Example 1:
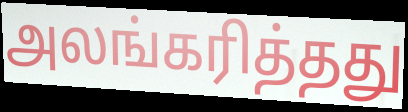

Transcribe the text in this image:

அலங்கரித்தது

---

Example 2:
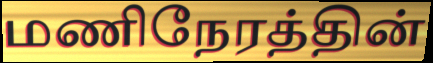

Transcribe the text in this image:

மணிநேரத்தின்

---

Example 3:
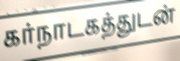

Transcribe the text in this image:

கர்நாடகத்துடன்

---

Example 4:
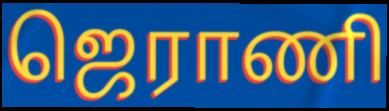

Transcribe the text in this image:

ஜெராணி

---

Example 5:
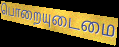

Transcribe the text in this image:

பொறையுடைமை